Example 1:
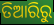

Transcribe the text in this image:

ତିଆରିରୁ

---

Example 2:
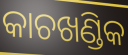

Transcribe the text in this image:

କାଚଖଣ୍ଡିକ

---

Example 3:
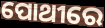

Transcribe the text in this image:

ପୋଥୀରେ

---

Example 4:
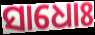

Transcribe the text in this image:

ସାଧୋଃ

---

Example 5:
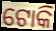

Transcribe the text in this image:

ଟୋକି